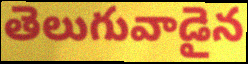
తెలుగువాడైన